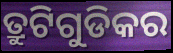
ତ୍ରୁଟିଗୁଡିକର